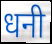
धनी